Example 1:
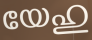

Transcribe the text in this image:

യേഹു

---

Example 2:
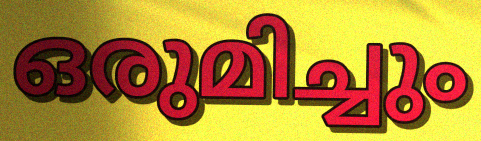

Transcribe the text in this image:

ഒരുമിച്ചും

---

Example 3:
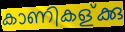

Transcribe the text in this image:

കാണികള്ക്കു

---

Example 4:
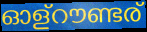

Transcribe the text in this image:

ഓള്റൗണ്ടര്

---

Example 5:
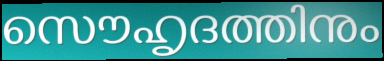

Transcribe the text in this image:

സൌഹൃദത്തിനും